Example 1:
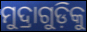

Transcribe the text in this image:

ମୁଦ୍ରାଗୁଡ଼ିକୁ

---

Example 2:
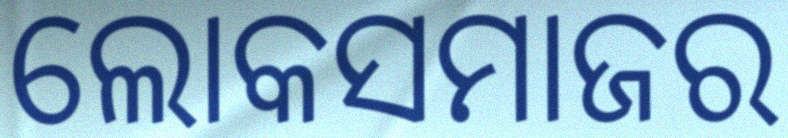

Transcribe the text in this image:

ଲୋକସମାଜର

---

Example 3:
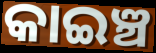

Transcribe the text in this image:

କାଇଞ୍ଚ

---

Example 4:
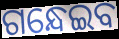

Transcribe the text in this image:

ଗନ୍ଧେଇବ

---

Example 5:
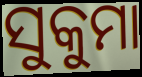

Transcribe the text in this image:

ସୁକୁମା